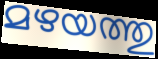
മഴയത്തു